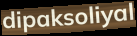
dipaksoliyal